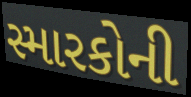
સ્મારકોની